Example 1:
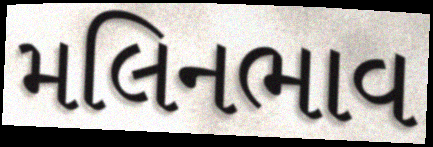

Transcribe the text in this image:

મલિનભાવ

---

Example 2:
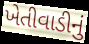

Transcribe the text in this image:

ખેતીવાડીનું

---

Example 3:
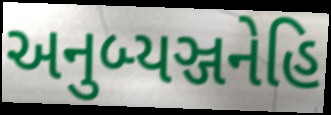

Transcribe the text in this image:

અનુબ્યઞ્જનેહિ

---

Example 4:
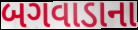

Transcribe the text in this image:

બગવાડાના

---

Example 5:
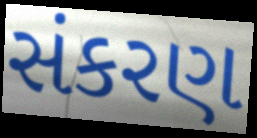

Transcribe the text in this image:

સંકરણ